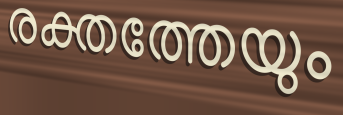
രക്തത്തേയും